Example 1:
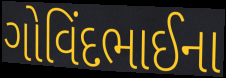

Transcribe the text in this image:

ગોવિંદભાઈના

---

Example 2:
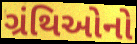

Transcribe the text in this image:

ગ્રંથિઓનો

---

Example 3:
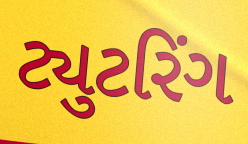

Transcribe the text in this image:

ટ્યુટરિંગ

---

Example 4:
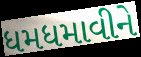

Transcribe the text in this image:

ધમધમાવીને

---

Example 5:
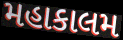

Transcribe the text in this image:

મહાકાલમ